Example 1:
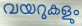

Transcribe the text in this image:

വയറുകളും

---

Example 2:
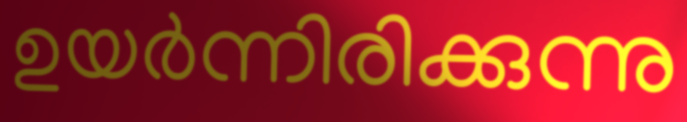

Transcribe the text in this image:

ഉയർന്നിരിക്കുന്നു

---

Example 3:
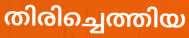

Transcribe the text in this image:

തിരിച്ചെത്തിയ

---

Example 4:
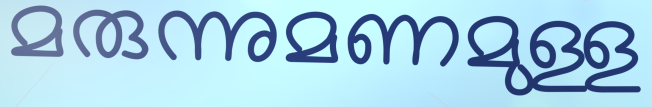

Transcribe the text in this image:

മരുന്നുമണമുള്ള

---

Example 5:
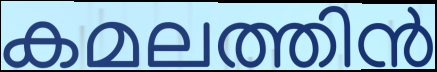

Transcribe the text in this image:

കമലത്തിൻ